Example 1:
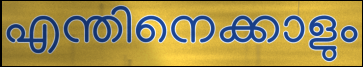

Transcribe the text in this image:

എന്തിനെക്കാളും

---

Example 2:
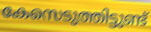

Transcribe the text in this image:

കേസെടുത്തിട്ടുണ്ട്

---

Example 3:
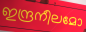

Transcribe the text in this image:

ഇന്ദ്രനീലമോ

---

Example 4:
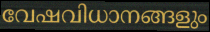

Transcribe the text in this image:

വേഷവിധാനങ്ങളും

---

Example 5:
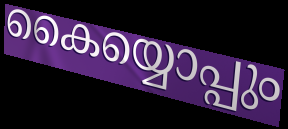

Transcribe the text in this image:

കൈയ്യൊപ്പും